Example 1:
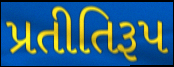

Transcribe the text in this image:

પ્રતીતિરૂપ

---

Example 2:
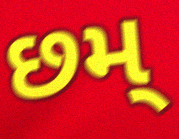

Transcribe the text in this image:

છમ્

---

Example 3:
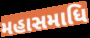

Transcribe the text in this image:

મહાસમાધિ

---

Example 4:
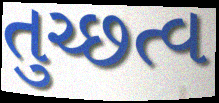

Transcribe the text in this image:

તુચ્છત્વ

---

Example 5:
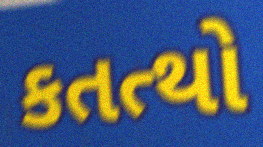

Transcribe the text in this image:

કતત્થો